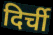
दिर्ची